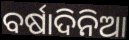
ବର୍ଷାଦିନିଆ